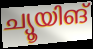
ച്യൂയിങ്